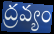
ద్రవ్యం